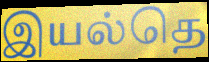
இயல்தெ